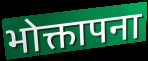
भोक्तापना